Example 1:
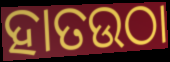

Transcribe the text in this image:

ହାତଉଠା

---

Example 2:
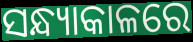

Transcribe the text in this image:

ସନ୍ଧ୍ୟାକାଳରେ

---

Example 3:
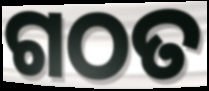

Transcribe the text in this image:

ଗଠତ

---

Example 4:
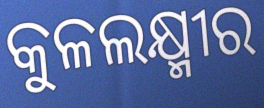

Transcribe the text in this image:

କୁଳଲକ୍ଷ୍ମୀର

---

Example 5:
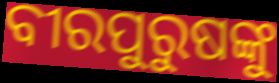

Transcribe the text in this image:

ବୀରପୁରୁଷଙ୍କୁ